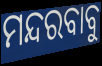
ମନ୍ଦରବାବୁ